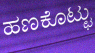
ಹಣಕೊಟ್ಟು